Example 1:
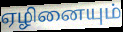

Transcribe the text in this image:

ஏழினையும்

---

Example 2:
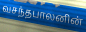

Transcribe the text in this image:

வசந்தபாலனின்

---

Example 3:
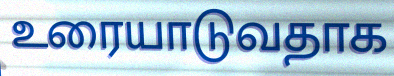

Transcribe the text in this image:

உரையாடுவதாக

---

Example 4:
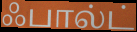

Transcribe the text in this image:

ஃபால்ட்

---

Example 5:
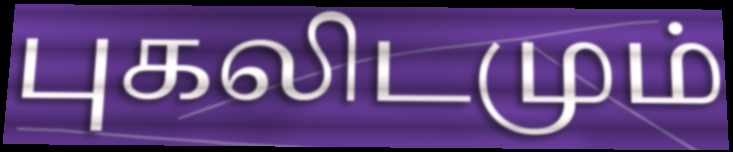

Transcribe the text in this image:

புகலிடமும்